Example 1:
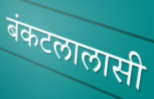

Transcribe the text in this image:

बंकटलालासी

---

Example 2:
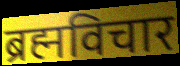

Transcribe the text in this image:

ब्रह्मविचार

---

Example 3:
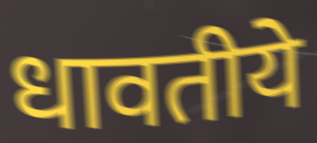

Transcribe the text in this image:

धावतीये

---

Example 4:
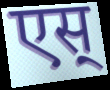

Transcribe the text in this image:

एस्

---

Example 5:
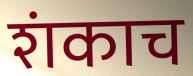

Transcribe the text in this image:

शंकाच